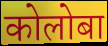
कोलोबा